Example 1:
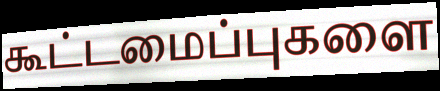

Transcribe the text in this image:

கூட்டமைப்புகளை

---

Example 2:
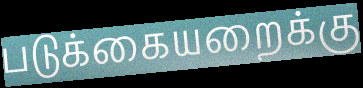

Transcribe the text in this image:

படுக்கையறைக்கு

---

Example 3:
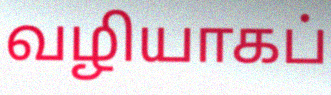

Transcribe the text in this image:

வழியாகப்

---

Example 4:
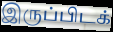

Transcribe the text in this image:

இருப்பிடக்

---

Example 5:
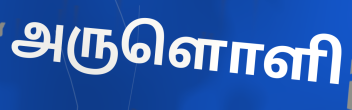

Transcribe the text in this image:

அருளொளி